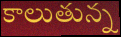
కాలుతున్న